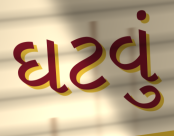
ઘટવું